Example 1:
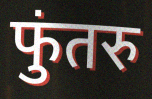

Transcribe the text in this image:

फुंतरु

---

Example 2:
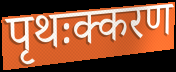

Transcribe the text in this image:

पृथःक्करण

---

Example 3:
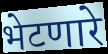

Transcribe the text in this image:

भेटणारे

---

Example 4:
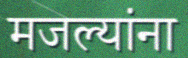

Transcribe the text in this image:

मजल्यांना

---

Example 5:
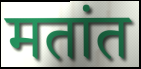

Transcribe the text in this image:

मतांत